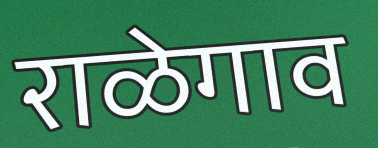
राळेगाव